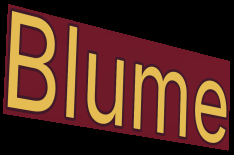
Blume